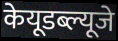
केयूडब्ल्यूजे